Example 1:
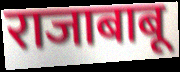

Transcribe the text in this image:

राजाबाबू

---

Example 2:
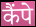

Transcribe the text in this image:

कैंपे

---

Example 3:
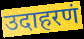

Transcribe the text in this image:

उदाहरणं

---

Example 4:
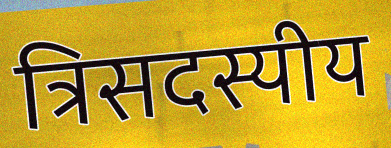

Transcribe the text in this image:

त्रिसदस्यीय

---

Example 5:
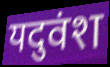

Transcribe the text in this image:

यदुवंश